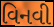
વિનવી